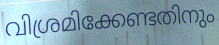
വിശ്രമിക്കേണ്ടതിനും